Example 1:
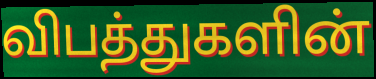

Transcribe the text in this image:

விபத்துகளின்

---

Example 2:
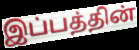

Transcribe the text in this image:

இப்பத்தின்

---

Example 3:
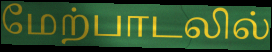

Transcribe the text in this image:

மேற்பாடலில்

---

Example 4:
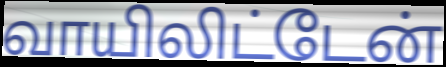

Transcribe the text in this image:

வாயிலிட்டேன்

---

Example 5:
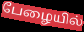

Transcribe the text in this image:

பேழையில்